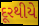
દૂરથીયે